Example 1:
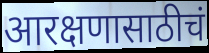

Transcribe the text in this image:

आरक्षणासाठीचं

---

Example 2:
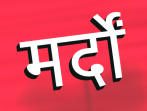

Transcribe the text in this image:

मर्दों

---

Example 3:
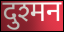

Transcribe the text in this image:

दुश्मन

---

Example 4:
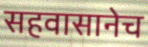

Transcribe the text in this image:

सहवासानेच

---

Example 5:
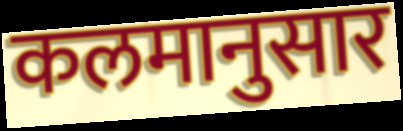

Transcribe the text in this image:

कलमानुसार